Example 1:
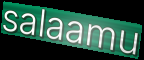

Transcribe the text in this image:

salaamu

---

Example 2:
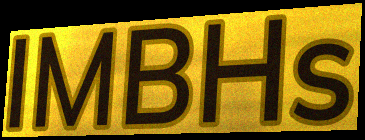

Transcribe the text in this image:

IMBHs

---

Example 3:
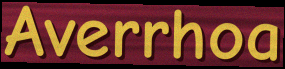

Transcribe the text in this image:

Averrhoa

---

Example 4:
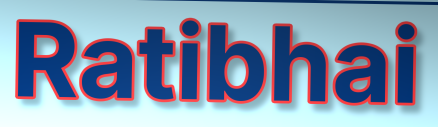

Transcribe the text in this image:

Ratibhai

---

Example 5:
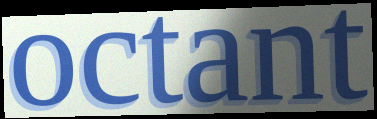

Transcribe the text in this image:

octant